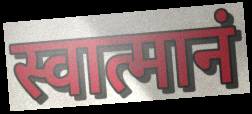
स्वात्मानं